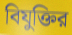
বিযুক্তির